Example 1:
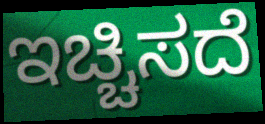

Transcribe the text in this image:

ಇಚ್ಚಿಸದೆ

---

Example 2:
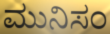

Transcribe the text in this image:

ಮುನಿಸಂ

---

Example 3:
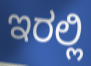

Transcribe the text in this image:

ಇರಲ್ಲಿ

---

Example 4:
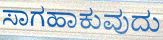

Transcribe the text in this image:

ಸಾಗಹಾಕುವುದು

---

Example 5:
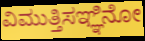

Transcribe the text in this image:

ವಿಮುತ್ತಿಸಞ್ಞಿನೋ